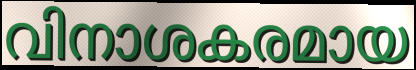
വിനാശകരമായ